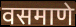
वसमाणे